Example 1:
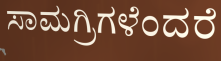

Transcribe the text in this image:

ಸಾಮಗ್ರಿಗಳೆಂದರೆ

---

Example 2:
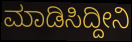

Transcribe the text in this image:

ಮಾಡಿಸಿದ್ದೀನಿ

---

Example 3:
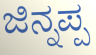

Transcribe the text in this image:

ಜಿನ್ನಪ್ಪ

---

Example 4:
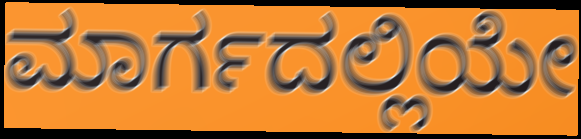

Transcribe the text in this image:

ಮಾರ್ಗದಲ್ಲಿಯೇ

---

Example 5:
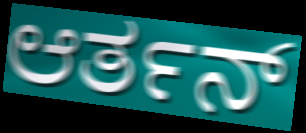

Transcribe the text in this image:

ಆರ್ತನ್